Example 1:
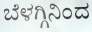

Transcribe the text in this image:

ಬೆಳಗ್ಗಿನಿಂದ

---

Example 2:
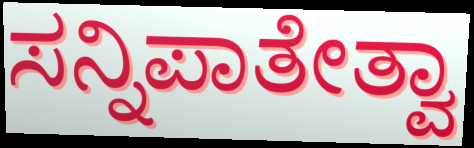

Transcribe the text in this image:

ಸನ್ನಿಪಾತೇತ್ವಾ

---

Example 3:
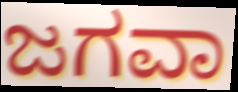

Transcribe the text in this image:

ಜಗವಾ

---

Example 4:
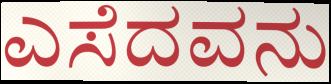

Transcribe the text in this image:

ಎಸೆದವನು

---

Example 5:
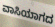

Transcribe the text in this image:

ವಾಸಿಯಾಗದ